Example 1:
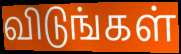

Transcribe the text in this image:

விடுங்கள்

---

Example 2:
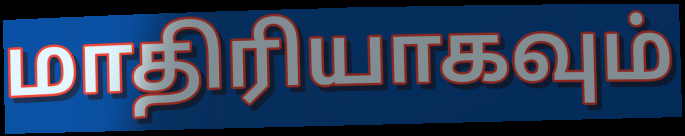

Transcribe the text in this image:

மாதிரியாகவும்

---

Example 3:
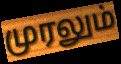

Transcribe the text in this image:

முரலும்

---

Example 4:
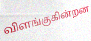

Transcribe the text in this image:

விளங்குகின்றன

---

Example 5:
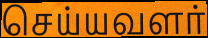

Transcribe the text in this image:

செய்யவளர்